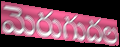
మెరుగుదల